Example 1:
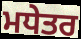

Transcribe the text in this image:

ਮਧੇਤਰ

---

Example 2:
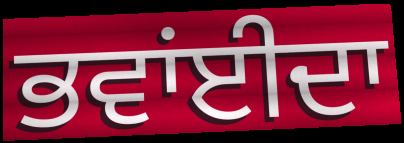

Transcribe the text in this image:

ਭਵਾਂਈਦਾ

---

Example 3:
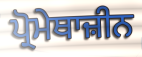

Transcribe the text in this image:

ਪ੍ਰੋਮੇਥਾਜ਼ੀਨ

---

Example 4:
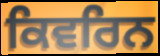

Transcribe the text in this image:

ਕਿਵਰਿਨ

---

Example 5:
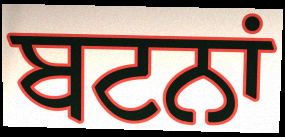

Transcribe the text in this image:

ਬਟਨਾਂ